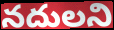
నదులని